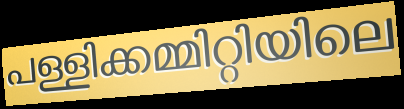
പള്ളിക്കമ്മിറ്റിയിലെ